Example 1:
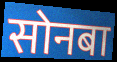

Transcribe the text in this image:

सोनबा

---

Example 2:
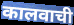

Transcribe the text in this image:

कालवाची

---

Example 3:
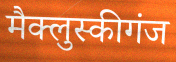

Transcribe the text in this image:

मैक्लुस्कीगंज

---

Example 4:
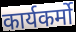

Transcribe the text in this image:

कार्यकर्मो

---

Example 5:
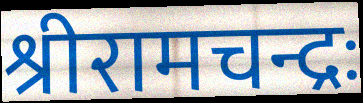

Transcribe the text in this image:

श्रीरामचन्द्रः